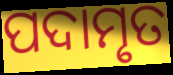
ପଦାମୃତ